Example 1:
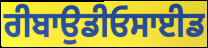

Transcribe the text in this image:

ਰੀਬਾਉਡੀਓਸਾਈਡ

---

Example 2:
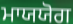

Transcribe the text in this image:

ਮਾਯਯੋਗ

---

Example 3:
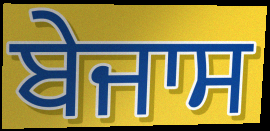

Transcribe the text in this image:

ਬੇਜਾਸ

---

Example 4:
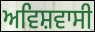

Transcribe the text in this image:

ਅਵਿਸ਼ਵਾਸੀ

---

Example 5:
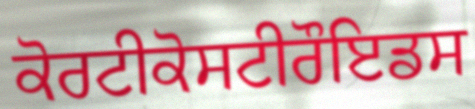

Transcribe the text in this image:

ਕੋਰਟੀਕੋਸਟੀਰੌਇਡਸ